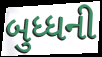
બુધ્ધની